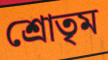
শ্রোতৃম